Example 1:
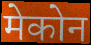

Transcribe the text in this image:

मेकोन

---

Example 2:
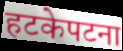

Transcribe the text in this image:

हटकेपटना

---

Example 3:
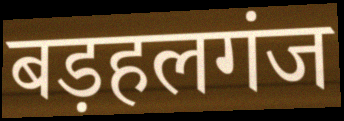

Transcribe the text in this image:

बड़हलगंज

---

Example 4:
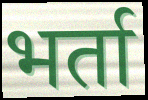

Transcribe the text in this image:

भर्ता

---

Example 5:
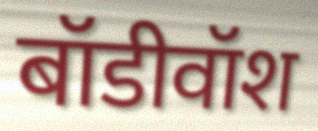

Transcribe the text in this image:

बॉडीवॉश